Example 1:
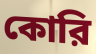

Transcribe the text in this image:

কোরি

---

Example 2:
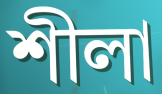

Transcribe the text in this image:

শীলা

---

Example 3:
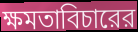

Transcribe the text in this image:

ক্ষমতাবিচারের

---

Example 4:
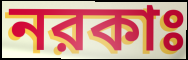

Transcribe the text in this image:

নরকাঃ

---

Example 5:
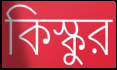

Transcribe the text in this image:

কিস্কুর